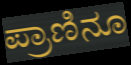
ಪ್ರಾಣಿನೂ